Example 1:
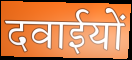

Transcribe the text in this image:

दवाईयों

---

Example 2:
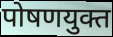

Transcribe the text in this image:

पोषणयुक्त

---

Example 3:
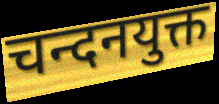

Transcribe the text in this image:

चन्दनयुक्त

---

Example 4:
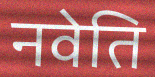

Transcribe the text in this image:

नवेति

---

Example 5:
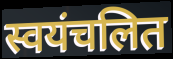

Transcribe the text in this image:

स्वयंचलित